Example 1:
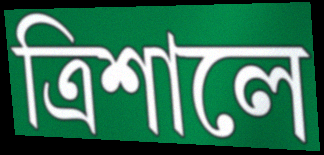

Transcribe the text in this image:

ত্রিশালে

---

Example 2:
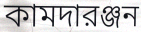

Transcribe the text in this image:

কামদারঞ্জন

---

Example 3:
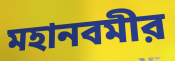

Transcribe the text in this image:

মহানবমীর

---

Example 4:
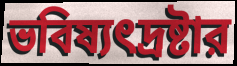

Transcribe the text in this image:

ভবিষ্যৎদ্রষ্টার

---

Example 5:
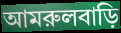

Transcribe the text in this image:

আমরুলবাড়ি